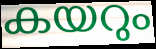
കയറും